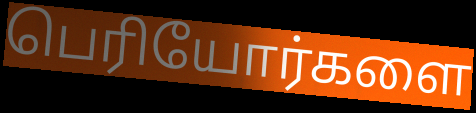
பெரியோர்களை